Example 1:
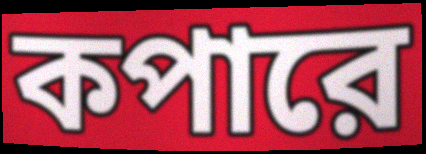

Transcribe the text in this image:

কপারে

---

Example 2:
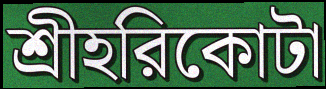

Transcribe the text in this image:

শ্রীহরিকোটা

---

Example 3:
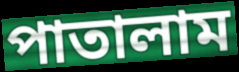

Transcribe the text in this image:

পাতালাম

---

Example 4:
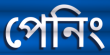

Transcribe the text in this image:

পেনিং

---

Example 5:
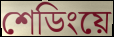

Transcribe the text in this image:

শেডিংয়ে